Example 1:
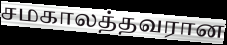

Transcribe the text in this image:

சமகாலத்தவரான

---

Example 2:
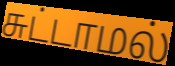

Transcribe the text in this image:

சுட்டாமல்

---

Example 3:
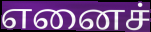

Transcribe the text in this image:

எனைச்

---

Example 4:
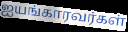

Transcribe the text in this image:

ஐயங்காரவர்கள்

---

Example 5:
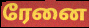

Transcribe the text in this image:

ரேனை